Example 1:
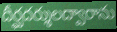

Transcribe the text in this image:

దీర్ఘదర్శులద్వారాను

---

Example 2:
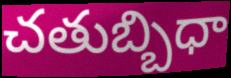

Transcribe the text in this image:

చతుబ్బిధా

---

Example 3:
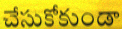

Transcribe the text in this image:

చేసుకోకుండా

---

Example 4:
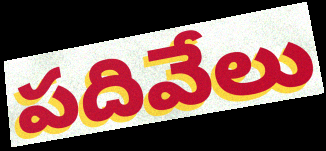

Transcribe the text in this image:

పదివేలు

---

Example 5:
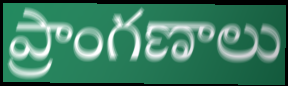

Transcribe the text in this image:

ప్రాంగణాలు